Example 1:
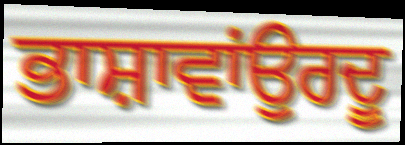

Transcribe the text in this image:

ਭਾਸ਼ਾਵਾਂਉਰਦੂ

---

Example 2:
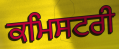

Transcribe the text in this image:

ਕਮਿਸਟਰੀ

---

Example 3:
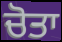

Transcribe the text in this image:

ਚੋਤਾ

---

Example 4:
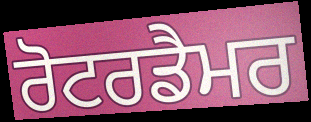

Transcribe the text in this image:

ਰੋਟਰਡੈਮਰ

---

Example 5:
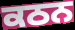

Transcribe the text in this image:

ਕਠਨ